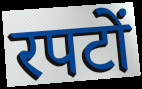
रपटों